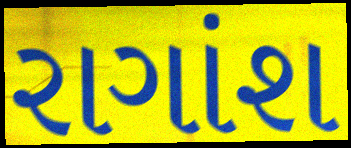
રાગાંશ